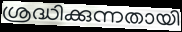
ശ്രദ്ധിക്കുന്നതായി